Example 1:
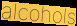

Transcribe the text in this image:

alcohols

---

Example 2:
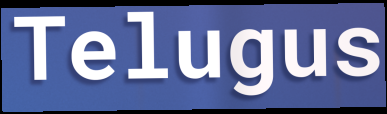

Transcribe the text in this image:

Telugus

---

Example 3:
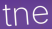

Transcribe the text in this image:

tne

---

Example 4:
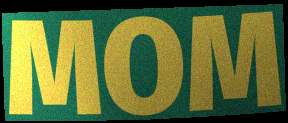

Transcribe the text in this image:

MOM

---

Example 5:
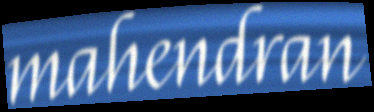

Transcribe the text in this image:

mahendran